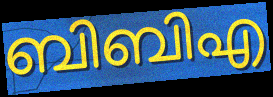
ബിബിഎ